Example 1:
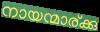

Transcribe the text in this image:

നായന്മാര്ക്കു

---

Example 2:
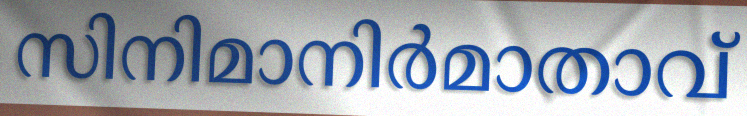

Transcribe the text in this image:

സിനിമാനിർമാതാവ്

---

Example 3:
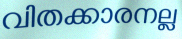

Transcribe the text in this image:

വിതക്കാരനല്ല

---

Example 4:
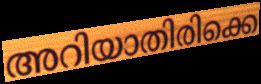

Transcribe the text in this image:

അറിയാതിരിക്കെ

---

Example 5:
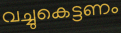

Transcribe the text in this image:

വച്ചുകെട്ടണം